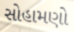
સોહામણો